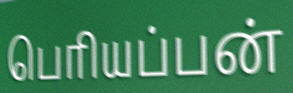
பெரியப்பன்